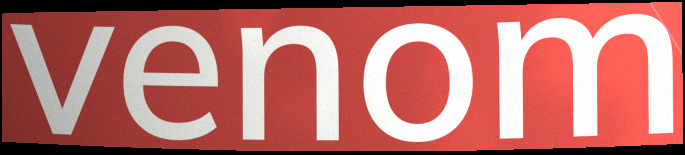
venom